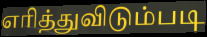
எரித்துவிடும்படி